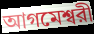
আগমেশ্বরী